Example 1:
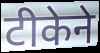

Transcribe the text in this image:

टीकेने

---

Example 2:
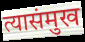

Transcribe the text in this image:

त्यासंमुख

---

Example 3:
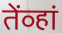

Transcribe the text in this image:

तेंव्हां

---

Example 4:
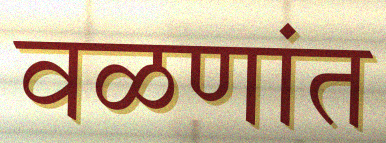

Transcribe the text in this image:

वळणांत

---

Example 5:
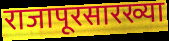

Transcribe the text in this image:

राजापूरसारख्या